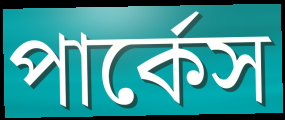
পার্কেস